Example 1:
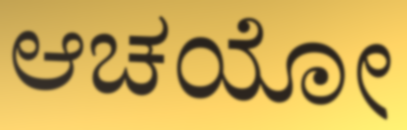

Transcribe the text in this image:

ಆಚಯೋ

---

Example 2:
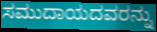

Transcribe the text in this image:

ಸಮುದಾಯದವರನ್ನು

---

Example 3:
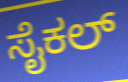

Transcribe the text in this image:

ಸೈಕಲ್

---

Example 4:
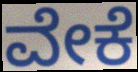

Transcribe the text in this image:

ವೇಕೆ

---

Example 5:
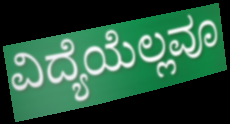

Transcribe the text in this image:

ವಿದ್ಯೆಯೆಲ್ಲವೂ